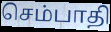
செம்பாதி